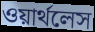
ওয়ার্থলেস